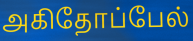
அகிதோப்பேல்